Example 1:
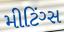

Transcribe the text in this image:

મીટિંગ્સ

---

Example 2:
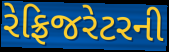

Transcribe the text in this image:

રેફ્રિજરેટરની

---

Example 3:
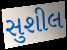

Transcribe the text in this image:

સુશીલ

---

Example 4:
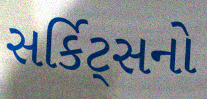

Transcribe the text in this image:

સર્કિટ્સનો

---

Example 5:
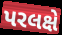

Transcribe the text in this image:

પરલક્ષે